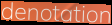
denotation